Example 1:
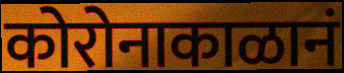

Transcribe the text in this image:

कोरोनाकाळानं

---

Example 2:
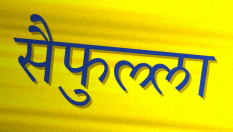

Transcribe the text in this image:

सैफुल्ला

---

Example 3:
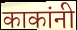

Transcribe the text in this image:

काकांनी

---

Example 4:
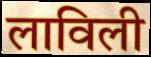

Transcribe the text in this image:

लाविली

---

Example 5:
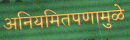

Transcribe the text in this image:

अनियमितपणामुळे